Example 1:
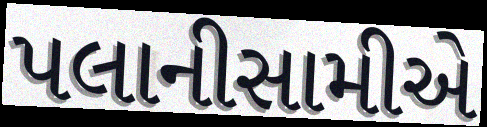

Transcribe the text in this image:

પલાનીસામીએ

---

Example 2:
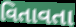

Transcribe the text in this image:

વિતાવતા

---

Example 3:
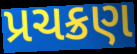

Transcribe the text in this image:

પ્રચક્રણ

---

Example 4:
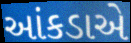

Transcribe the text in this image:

આંકડાએ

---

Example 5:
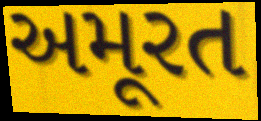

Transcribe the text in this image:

અમૂરત